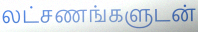
லட்சணங்களுடன்